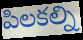
పిలకల్ని